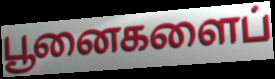
பூனைகளைப்